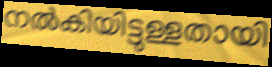
നൽകിയിട്ടുള്ളതായി